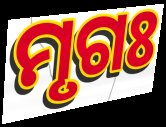
ମୃଗଃ